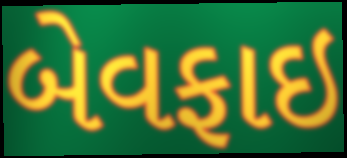
બેવફાઇ